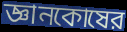
জ্ঞানকোষের